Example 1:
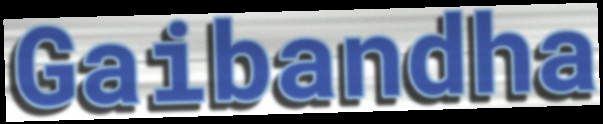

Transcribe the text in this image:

Gaibandha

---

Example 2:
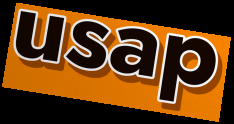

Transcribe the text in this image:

usap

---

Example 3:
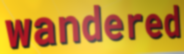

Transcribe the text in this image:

wandered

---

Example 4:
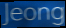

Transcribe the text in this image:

Jeong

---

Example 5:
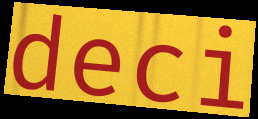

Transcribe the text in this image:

deci